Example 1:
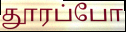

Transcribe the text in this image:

தூரப்போ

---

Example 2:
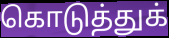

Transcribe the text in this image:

கொடுத்துக்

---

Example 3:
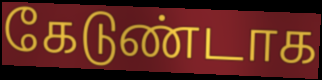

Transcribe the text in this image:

கேடுண்டாக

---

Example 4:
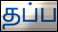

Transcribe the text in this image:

தப்ப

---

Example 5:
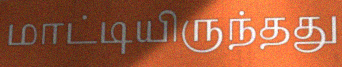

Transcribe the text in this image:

மாட்டியிருந்தது